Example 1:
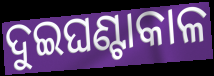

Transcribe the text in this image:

ଦୁଇଘଣ୍ଟାକାଳ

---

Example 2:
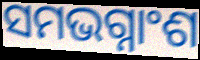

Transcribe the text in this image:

ସମଭଗ୍ନାଂଶ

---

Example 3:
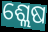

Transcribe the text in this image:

ଶ୍ଲେଷ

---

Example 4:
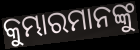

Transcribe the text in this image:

କୁମ୍ଭାରମାନଙ୍କୁ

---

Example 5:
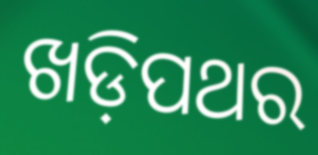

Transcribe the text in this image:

ଖଡ଼ିପଥର